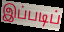
இப்படிப்